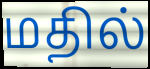
மதில்